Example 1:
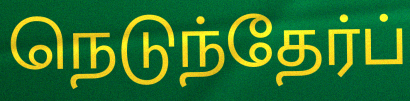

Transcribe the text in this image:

நெடுந்தேர்ப்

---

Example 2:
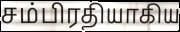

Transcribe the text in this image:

சம்பிரதியாகிய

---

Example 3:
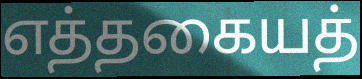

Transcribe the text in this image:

எத்தகையத்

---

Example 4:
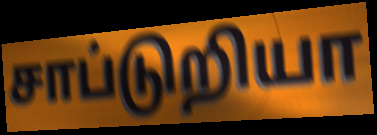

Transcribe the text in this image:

சாப்டுறியா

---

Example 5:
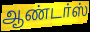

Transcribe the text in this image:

ஆண்டர்ஸ்